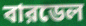
বারডেল